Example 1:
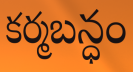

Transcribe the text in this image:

కర్మబన్ధం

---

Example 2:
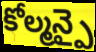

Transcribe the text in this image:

కోల్మన్పై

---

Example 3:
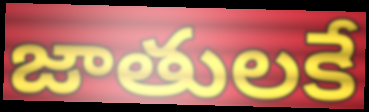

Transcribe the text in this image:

జాతులకే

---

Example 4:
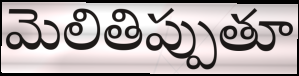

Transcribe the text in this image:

మెలితిప్పుతూ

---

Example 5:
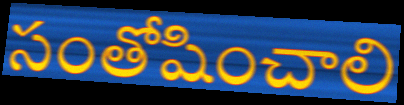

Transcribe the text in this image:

సంతోషించాలి